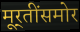
मूर्तींसमोर